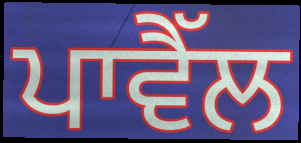
ਪਾਵੈੱਲ